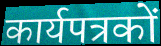
कार्यपत्रकों